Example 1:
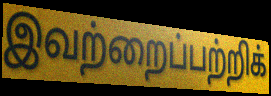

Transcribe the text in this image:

இவற்றைப்பற்றிக்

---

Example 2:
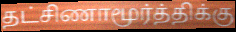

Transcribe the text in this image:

தட்சிணாமூர்த்திக்கு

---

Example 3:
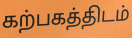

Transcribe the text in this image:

கற்பகத்திடம்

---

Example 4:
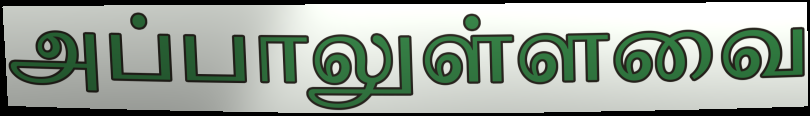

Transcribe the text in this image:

அப்பாலுள்ளவை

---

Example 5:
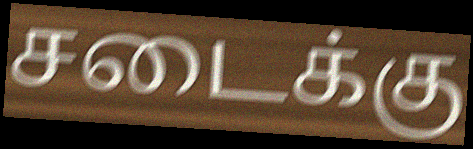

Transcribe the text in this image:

சடைக்கு